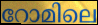
റോമിലെ